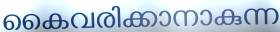
കൈവരിക്കാനാകുന്ന